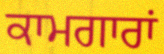
ਕਾਮਗਾਰਾਂ